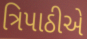
ત્રિપાઠીએ